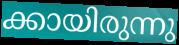
ക്കായിരുന്നു